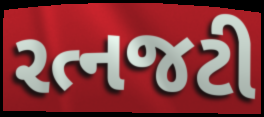
રત્નજટી